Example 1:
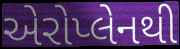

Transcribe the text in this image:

એરોપ્લેનથી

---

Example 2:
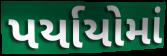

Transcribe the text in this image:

પર્યાયોમાં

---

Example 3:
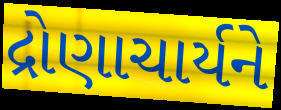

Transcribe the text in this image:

દ્રોણાચાર્યને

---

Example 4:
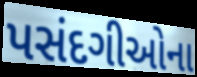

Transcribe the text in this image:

પસંદગીઓના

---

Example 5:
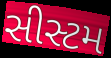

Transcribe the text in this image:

સીસ્ટમ